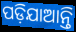
ପଡ଼ିଯାଆନ୍ତି